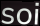
soi